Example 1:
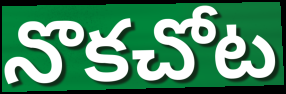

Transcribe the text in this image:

నొకచోట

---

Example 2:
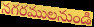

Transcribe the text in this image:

నగరములనుండి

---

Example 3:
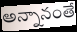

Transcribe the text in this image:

అన్నానంతే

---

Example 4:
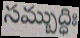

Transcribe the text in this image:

సమ్బుద్ధిః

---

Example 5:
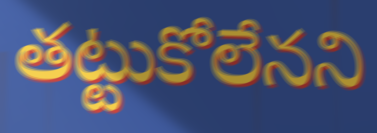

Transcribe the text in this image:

తట్టుకోలేనని